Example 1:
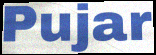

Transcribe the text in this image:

Pujar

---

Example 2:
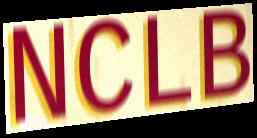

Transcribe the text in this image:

NCLB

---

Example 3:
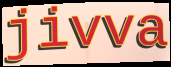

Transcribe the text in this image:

jivva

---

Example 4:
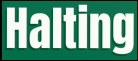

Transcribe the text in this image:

Halting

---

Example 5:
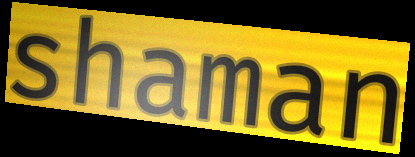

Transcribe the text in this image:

shaman